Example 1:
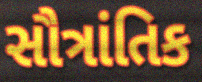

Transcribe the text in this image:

સૌત્રાંતિક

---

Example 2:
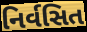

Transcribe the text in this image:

નિર્વસિત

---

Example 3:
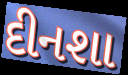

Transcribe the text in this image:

દીનશા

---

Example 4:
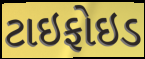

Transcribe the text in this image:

ટાઇફોઇડ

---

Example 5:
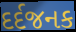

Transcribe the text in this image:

દર્દજનક